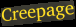
Creepage